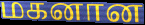
மகனான